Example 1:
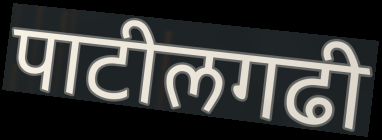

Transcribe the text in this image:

पाटीलगढी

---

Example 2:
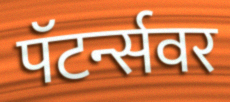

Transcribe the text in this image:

पॅटर्न्सवर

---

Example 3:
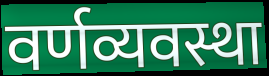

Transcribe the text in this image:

वर्णव्यवस्था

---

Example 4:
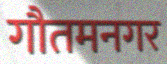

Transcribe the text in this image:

गौतमनगर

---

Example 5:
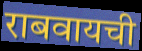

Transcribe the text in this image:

राबवायची